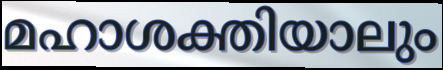
മഹാശക്തിയാലും